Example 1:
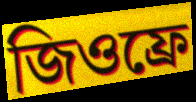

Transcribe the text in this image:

জিওফ্ৰে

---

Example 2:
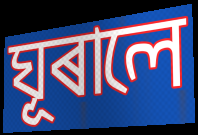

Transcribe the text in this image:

ঘূৰালে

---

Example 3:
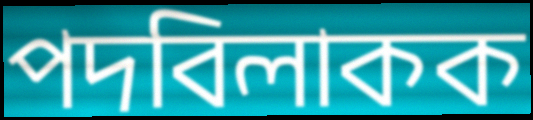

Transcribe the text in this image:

পদবিলাকক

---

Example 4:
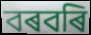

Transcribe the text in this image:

বৰবৰি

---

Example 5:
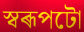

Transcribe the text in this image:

স্বৰূপটো